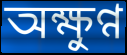
অক্ষুণ্ণ